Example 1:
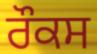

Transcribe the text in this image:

ਰੌਕਸ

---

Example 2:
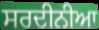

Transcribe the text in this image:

ਸਰਦੀਨੀਆ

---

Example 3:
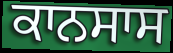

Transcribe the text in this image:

ਕਾਨਸਾਸ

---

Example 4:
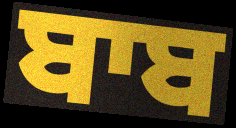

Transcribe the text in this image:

ਬਾਬ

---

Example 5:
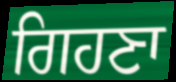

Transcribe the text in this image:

ਗਿਹਣਾ